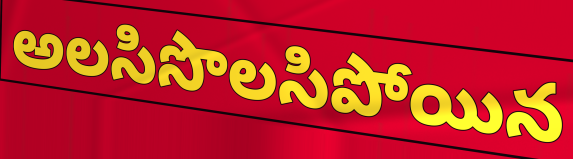
అలసిసొలసిపోయిన